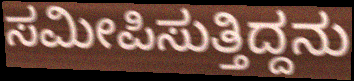
ಸಮೀಪಿಸುತ್ತಿದ್ದನು